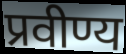
प्रवीण्य